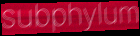
subphylum